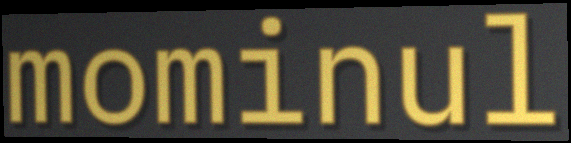
mominul